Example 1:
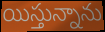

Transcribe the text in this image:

యిస్తున్నాను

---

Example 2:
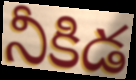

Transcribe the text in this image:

నీకిడ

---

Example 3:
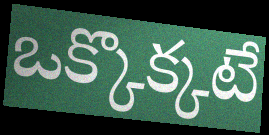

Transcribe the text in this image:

ఒక్కొక్కటే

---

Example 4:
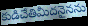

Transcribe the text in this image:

కుడిచేతిమీదనైనను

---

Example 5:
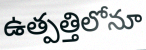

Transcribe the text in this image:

ఉత్పత్తిలోనూ